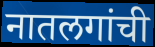
नातलगांची